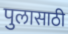
पुलासाठी